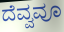
ದೆವ್ವವೂ